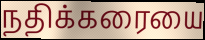
நதிக்கரையை